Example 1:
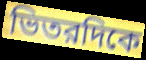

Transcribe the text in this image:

ভিতরদিকে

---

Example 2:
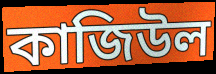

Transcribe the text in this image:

কাজিউল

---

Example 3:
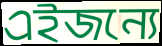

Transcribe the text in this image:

এইজন্যে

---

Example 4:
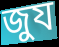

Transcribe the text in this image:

জুয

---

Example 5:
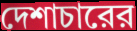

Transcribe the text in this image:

দেশাচারের